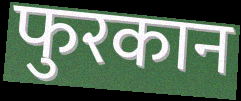
फुरकान